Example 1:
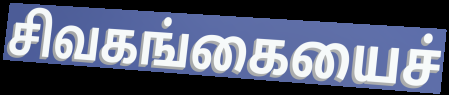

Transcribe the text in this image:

சிவகங்கையைச்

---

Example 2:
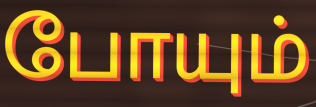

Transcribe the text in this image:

போயும்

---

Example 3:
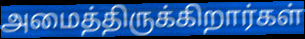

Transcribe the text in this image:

அமைத்திருக்கிறார்கள்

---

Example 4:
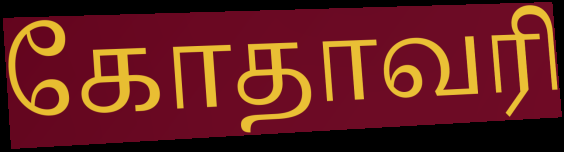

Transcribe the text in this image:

கோதாவரி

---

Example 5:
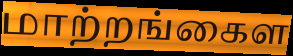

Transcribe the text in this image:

மாற்றங்கைள